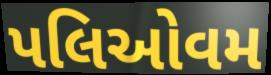
પલિઓવમ